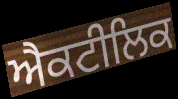
ਐਕਟੀਲਿਕ